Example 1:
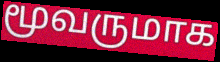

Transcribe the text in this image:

மூவருமாக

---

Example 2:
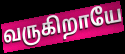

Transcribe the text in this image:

வருகிறாயே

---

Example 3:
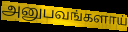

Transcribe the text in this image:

அனுபவங்களாய்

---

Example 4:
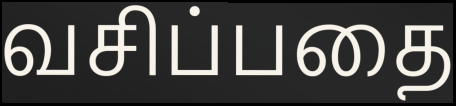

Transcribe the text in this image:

வசிப்பதை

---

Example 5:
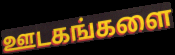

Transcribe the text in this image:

ஊடகங்களை